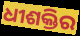
ଧୀଶକ୍ତିର